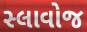
સ્લાવોજ